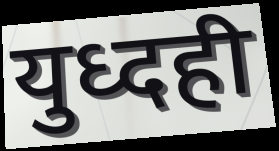
युध्दही